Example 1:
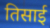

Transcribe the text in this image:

तिसाई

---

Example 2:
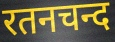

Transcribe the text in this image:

रतनचन्द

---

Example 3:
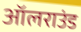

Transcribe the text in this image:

ऑलराउंड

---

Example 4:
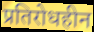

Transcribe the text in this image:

प्रतिरोधहीन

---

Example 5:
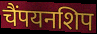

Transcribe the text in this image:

चैंपयनशिप